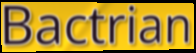
Bactrian